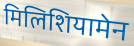
मिलिशियामेन